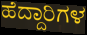
ಹೆದ್ದಾರಿಗಳ